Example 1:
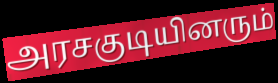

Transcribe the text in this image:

அரசகுடியினரும்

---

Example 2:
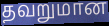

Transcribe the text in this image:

தவறுமான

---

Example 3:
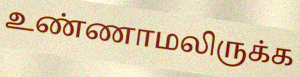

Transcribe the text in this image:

உண்ணாமலிருக்க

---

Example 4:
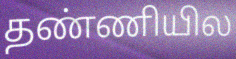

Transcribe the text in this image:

தண்ணியில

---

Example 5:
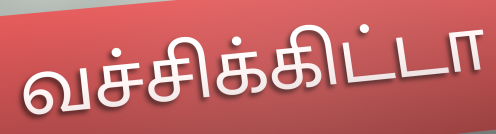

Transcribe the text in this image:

வச்சிக்கிட்டா